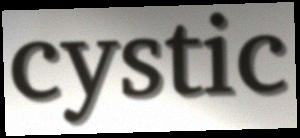
cystic